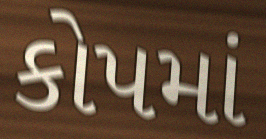
કોપમાં